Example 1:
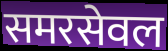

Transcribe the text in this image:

समरसेवल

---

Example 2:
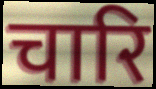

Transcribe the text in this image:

चारि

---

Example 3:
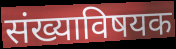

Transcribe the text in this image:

संख्याविषयक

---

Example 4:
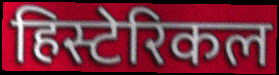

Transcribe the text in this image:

हिस्टेरिकल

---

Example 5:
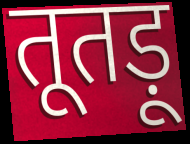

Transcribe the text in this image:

तूतड़ू